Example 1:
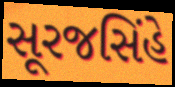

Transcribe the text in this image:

સૂરજસિંહે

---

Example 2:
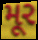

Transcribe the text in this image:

મૂર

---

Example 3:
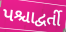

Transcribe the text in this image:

પશ્ચાદ્વર્તી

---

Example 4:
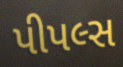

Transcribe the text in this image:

પીપલ્સ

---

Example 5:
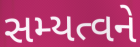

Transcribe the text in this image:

સમ્યત્વને